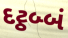
દટ્ઠબ્બં